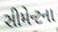
સીમેન્ટના